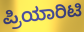
ಪ್ರಿಯಾರಿಟಿ